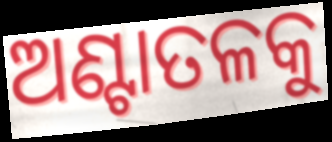
ଅଣ୍ଟାତଳକୁ